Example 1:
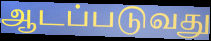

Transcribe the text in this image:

ஆடப்படுவது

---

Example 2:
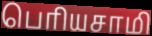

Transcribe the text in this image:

பெரியசாமி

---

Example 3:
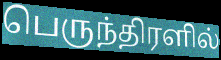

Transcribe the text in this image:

பெருந்திரளில்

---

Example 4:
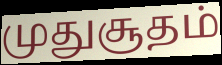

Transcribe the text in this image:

முதுசூதம்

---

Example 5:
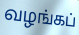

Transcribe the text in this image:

வழங்கப்